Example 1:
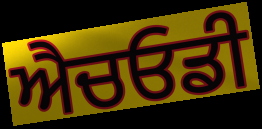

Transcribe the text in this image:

ਐਚਓਡੀ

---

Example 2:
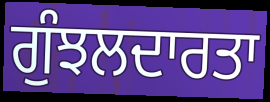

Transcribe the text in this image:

ਗੁੰਝਲਦਾਰਤਾ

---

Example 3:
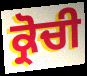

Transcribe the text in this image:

ਕ੍ਰੋਚੀ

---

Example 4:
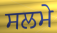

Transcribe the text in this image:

ਸਲਮੇ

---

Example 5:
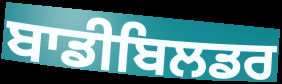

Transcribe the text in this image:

ਬਾਡੀਬਿਲਡਰ